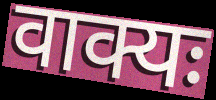
वाक्यः